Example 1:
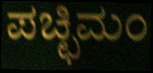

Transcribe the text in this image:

ಪಚ್ಛಿಮಂ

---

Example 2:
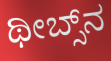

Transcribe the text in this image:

ಥೀಬ್ಸ್‌ನ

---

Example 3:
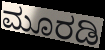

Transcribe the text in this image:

ಮೂರಡಿ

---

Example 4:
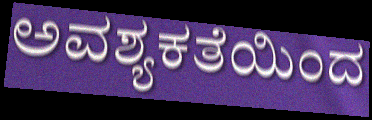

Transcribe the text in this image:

ಅವಶ್ಯಕತೆಯಿಂದ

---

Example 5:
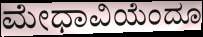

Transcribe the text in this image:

ಮೇಧಾವಿಯೆಂದೂ